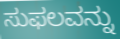
ಸುಫಲವನ್ನು